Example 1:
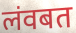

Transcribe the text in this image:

लंवबत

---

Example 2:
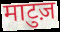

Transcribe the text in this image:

माटुज़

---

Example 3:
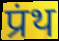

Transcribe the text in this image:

प्रंथ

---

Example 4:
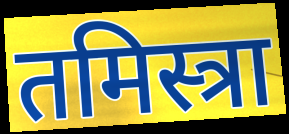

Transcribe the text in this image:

तमिस्त्रा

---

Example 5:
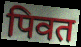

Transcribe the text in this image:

पिवत